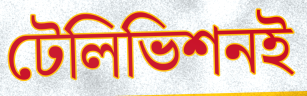
টেলিভিশনই